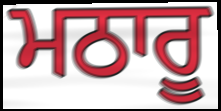
ਮਠਾਰੂ